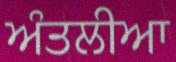
ਅੰਤਲੀਆ